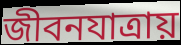
জীবনযাত্রায়